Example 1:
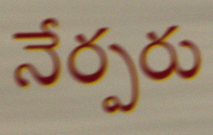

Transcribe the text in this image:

నేర్పరు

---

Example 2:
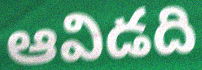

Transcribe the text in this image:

ఆవిడది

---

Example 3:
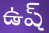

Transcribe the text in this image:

ఉష్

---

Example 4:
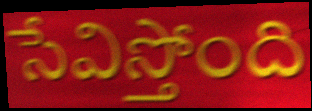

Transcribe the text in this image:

సేవిస్తోంది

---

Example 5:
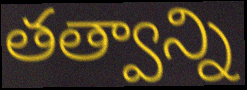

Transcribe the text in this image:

తత్వాన్ని